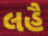
લહૈ